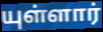
யுள்ளார்